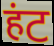
हंट